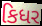
કિધર